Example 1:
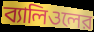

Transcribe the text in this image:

ব্যালিওলের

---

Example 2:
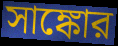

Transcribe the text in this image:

সাঙ্কোর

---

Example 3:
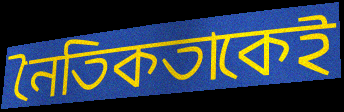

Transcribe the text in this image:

নৈতিকতাকেই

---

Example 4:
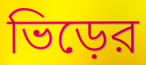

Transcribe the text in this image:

ভিড়ের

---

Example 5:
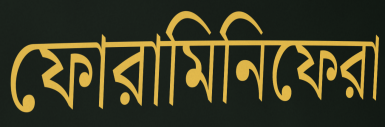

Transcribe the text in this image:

ফোরামিনিফেরা